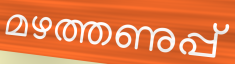
മഴത്തണുപ്പ്